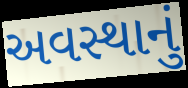
અવસ્થાનું